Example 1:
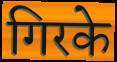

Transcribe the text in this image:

गिरके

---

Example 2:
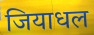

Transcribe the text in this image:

जियाधल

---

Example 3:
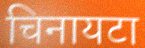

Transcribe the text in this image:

चिनायटा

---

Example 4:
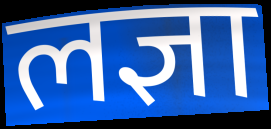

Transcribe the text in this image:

लज्ञा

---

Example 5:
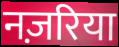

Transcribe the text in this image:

नज़रिया